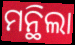
ମନ୍ଥିଲା